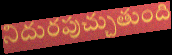
నిదురపుచ్చుతుంది